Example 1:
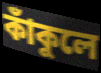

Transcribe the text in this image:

কাঁকুলে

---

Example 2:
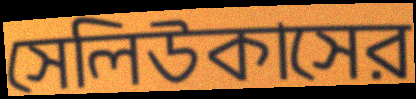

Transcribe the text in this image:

সেলিউকাসের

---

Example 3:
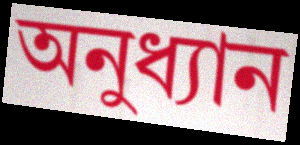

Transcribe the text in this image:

অনুধ্যান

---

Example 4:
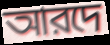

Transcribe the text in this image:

আরদে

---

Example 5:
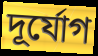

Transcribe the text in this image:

দূর্যোগ